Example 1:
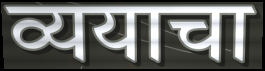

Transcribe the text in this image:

व्ययाचा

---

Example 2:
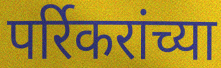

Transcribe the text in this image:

पर्रिकरांच्या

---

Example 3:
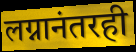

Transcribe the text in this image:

लग्नानंतरही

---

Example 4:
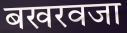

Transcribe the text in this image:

बखरवजा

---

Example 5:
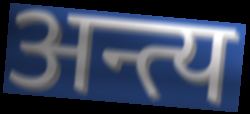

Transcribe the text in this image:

अन्त्य